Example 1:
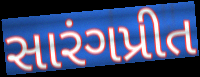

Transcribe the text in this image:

સારંગપ્રીત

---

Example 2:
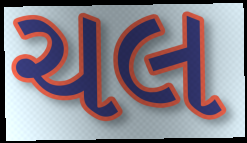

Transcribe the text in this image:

ચલ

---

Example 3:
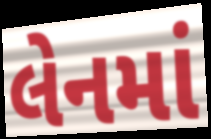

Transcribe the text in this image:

લેનમાં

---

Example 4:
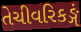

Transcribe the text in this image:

તેચીવરિકઙ્ગં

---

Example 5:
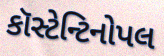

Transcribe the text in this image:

કૉસ્ટેન્ટિનોપલ